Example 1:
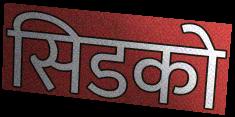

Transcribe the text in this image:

सिडको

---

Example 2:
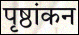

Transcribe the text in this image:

पृष्ठांकन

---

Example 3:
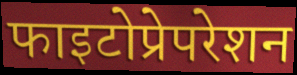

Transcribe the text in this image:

फाइटोप्रेपरेशन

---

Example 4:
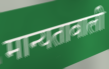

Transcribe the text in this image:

मान्यतावाली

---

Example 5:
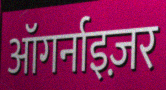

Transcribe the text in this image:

ऑगर्नाइज़र